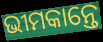
ଭୀମକାନ୍ତେ